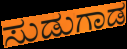
ಸುಡುಗಾಡ